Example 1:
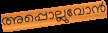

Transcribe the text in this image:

അപ്പൊല്ലുവോൻ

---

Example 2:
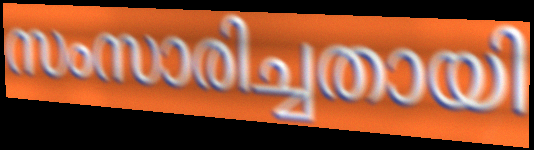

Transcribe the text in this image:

സംസാരിച്ചതായി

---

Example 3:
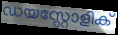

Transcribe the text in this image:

ഡയസ്റ്റോളിക്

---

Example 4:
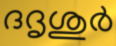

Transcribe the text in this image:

ദദൃശുർ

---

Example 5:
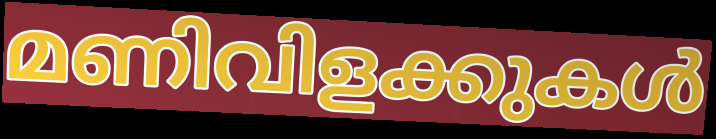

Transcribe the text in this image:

മണിവിളക്കുകൾ